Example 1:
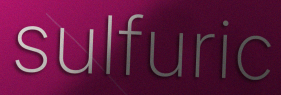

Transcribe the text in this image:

sulfuric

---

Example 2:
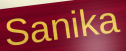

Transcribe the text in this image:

Sanika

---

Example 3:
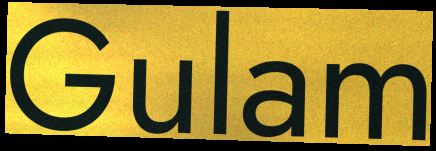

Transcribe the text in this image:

Gulam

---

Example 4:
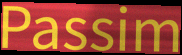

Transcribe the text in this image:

Passim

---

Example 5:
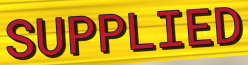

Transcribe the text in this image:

SUPPLIED